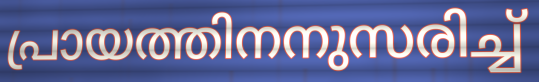
പ്രായത്തിനനുസരിച്ച്